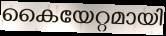
കൈയേറ്റമായി